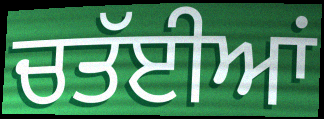
ਚਤੱਈਆਂ